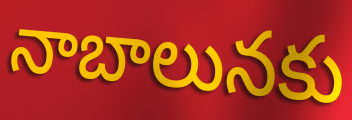
నాబాలునకు